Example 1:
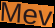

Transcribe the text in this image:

Mev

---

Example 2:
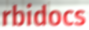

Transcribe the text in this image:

rbidocs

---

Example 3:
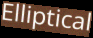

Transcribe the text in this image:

Elliptical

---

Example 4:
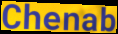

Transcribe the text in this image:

Chenab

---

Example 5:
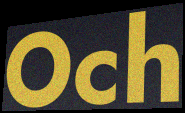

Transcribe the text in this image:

Och